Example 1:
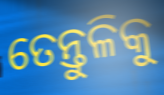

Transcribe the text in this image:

ତେନ୍ତୁଳିକୁ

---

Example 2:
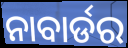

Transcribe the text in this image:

ନାବାର୍ଡର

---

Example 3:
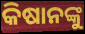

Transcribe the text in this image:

କିଷାନଙ୍କୁ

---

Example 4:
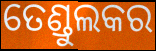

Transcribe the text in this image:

ତେଣ୍ଡୁଲକର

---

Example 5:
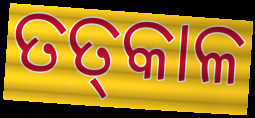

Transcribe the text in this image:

ତତ୍‌କାଳ